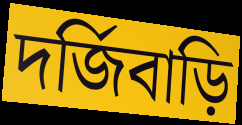
দর্জিবাড়ি